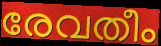
രേവതീം